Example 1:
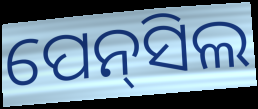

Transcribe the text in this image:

ପେନ୍‍ସିଲ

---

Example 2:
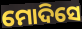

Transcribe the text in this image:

ମୋଦିସେ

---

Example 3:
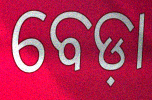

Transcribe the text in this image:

ବେଡ଼ା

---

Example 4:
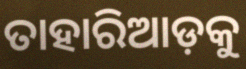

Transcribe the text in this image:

ତାହାରିଆଡ଼କୁ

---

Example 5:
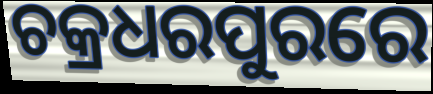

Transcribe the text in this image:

ଚକ୍ରଧରପୁରରେ